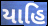
યાહિ